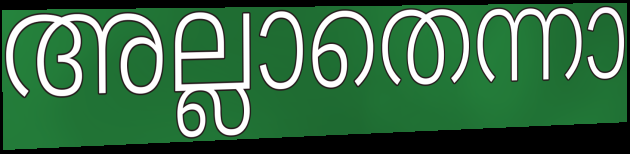
അല്ലാതെന്നാ